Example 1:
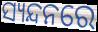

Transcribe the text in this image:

ସ୍ୟନ୍ଦନରେ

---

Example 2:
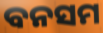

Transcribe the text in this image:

ବନସମ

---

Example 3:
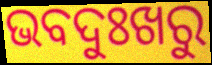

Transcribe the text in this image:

ଭବଦୁଃଖରୁ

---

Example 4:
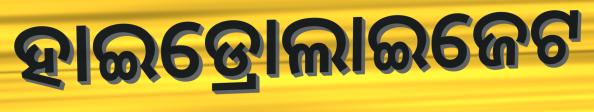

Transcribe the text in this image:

ହାଇଡ୍ରୋଲାଇଜେଟ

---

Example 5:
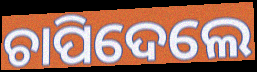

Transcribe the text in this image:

ଚାପିଦେଲେ